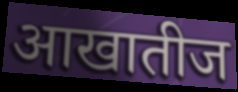
आखातीज